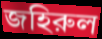
জহিরুল